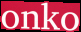
onko